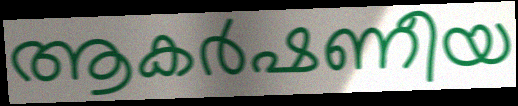
ആകർഷണീയ